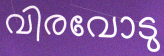
വിരവോടു